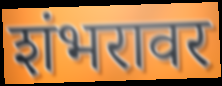
शंभरावर